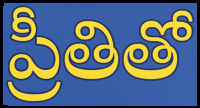
ప్రీతితో